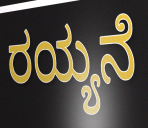
ರಯ್ಯನೆ